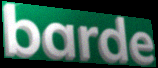
barde